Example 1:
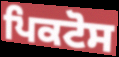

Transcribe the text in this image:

ਪਿਕਟੋਸ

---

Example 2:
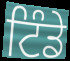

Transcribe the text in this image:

ਟਿੰਡੇ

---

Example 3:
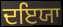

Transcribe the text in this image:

ਦਇਯਾ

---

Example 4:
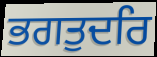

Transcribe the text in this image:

ਭਗਤੁਦਰਿ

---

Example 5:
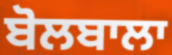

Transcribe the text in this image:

ਬੋਲਬਾਲਾ